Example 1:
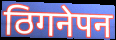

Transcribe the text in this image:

ठिगनेपन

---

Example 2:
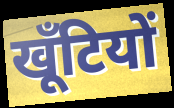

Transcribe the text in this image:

खूँटियों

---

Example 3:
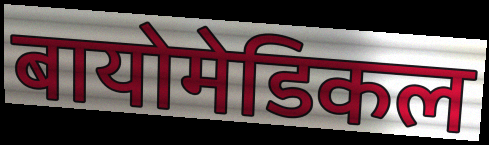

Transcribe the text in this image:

बायोमेडिकल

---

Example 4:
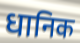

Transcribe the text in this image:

धानिक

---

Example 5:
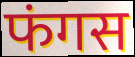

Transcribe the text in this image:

फंगस